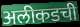
अलीकडची